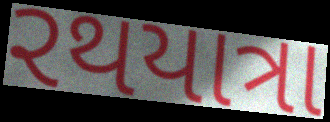
રથયાત્રા